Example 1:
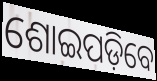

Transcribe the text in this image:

ଶୋଇପଡ଼ିବେ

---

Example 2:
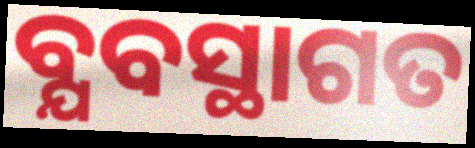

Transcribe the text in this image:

ବ୍ଯବସ୍ଥାଗତ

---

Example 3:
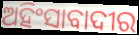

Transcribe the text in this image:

ଅହିଂସାବାଦୀର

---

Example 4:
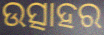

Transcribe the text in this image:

ଉତ୍ସାହର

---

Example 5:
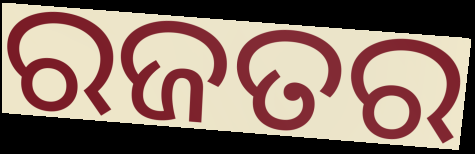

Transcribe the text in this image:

ରଜତର